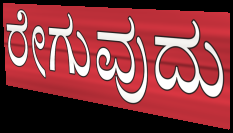
ರೇಗುವುದು